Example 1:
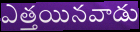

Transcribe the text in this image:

ఎత్తయినవాడు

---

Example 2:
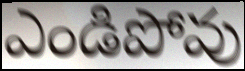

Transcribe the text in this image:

ఎండిపోవు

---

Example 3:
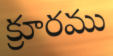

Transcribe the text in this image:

క్రూరము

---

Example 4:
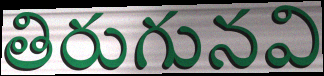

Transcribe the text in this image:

తిరుగునవి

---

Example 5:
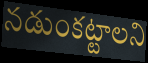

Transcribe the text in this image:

నడుంకట్టాలని